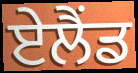
ਏਲੈਂਡ